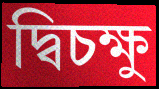
দ্বিচক্ষু